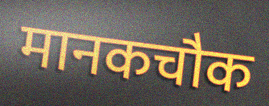
मानकचौक